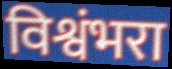
विश्वंभरा